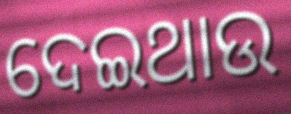
ଦେଇଥାଉ